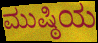
ಮುಷ್ಠಿಯ